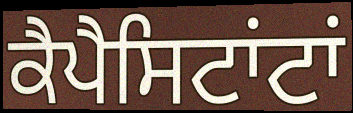
ਕੈਪੈਸਿਟਾਂਟਾਂ